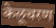
केलूचरण